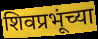
शिवप्रभूंच्या